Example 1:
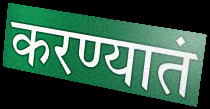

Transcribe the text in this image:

करण्यातं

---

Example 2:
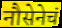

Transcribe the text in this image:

नौसेनेचं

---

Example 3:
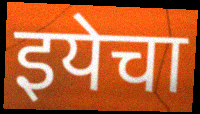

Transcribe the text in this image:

इयेचा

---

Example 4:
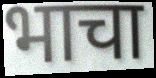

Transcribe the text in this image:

भाचा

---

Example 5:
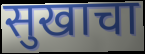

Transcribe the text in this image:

सुखाचा